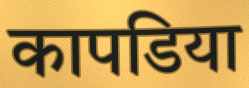
कापडिया